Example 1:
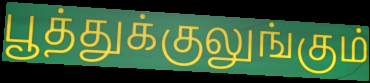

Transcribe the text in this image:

பூத்துக்குலுங்கும்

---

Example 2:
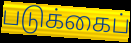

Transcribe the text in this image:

படுக்கைப்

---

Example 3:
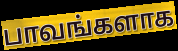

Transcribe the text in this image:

பாவங்களாக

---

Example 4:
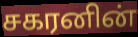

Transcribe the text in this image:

சகரனின்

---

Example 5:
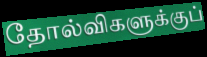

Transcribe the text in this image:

தோல்விகளுக்குப்